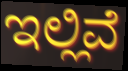
ಇಲ್ಲಿವೆ